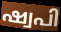
ഷ്വപി